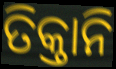
ତିକ୍ତାନି